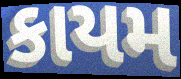
કાયમ